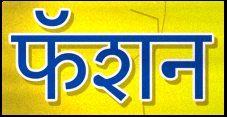
फॅशन